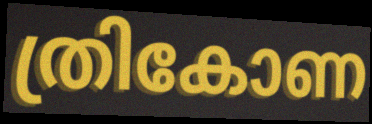
ത്രികോണ